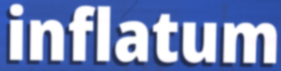
inflatum